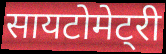
सायटोमेट्री